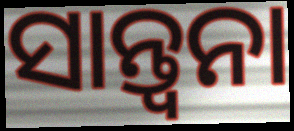
ସାନ୍ତ୍ଵନା